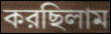
করছিলাম